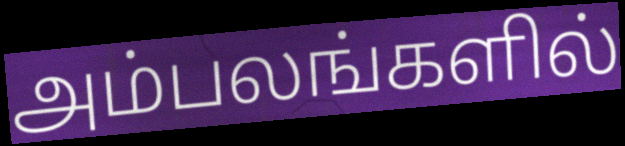
அம்பலங்களில்